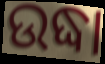
ଉଦ୍ଧା